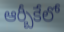
ఆర్బీకేలో